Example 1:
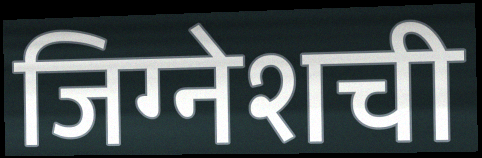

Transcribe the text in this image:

जिग्नेशची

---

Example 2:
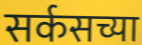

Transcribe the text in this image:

सर्कसच्या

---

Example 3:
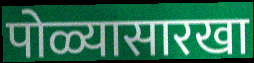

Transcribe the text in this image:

पोळ्यासारखा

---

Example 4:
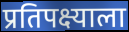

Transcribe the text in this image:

प्रतिपक्ष्याला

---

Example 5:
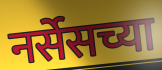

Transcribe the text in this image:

नर्सेसच्या